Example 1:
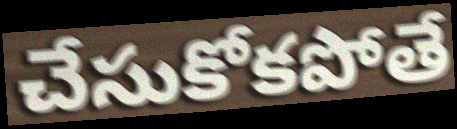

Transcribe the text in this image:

చేసుకోకపోతే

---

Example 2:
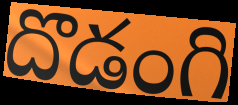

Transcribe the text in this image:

దొడంగి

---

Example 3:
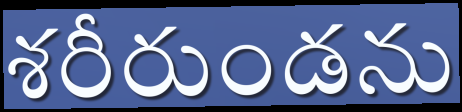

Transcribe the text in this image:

శరీరుండను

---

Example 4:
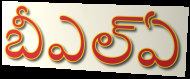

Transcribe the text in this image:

బీఎల్ఏ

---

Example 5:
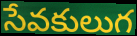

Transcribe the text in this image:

సేవకులుగ